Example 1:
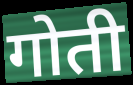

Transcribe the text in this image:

गोती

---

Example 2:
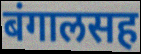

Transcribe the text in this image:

बंगालसह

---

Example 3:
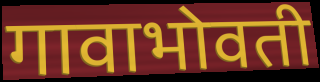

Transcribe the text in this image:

गावाभोवती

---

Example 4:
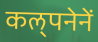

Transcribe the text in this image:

कल्पनेनें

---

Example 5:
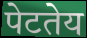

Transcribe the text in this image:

पेटतेय